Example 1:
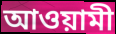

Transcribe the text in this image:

আওয়ামী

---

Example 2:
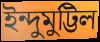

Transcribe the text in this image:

ইন্দুমুট্টিল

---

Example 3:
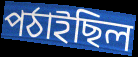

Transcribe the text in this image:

পঠাইছিল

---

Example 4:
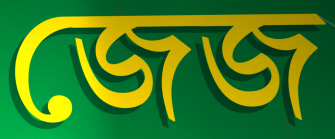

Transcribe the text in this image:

জেজ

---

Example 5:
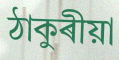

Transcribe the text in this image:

ঠাকুৰীয়া